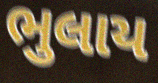
ભુલાય